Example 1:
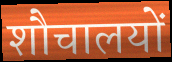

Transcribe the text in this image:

शौचालयों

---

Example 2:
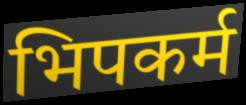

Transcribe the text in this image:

भिपकर्म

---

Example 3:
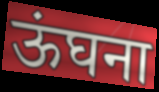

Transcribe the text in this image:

ऊंघना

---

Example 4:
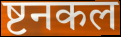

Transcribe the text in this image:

ष्टनकल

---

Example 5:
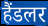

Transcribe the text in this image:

हैंडलर